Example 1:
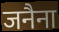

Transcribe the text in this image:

जनैना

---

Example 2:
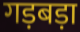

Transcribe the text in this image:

गड़बड़ा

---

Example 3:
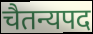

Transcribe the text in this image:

चैतन्यपद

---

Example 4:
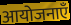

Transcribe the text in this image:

आयोजनाएँ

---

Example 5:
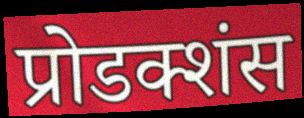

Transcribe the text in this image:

प्रोडक्शंस